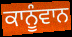
ਕਾਨੂੰਵਾਨ